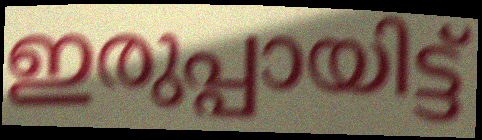
ഇരുപ്പായിട്ട്